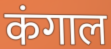
कंगाल